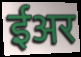
ईअर